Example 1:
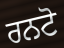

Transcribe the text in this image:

ਰਨਟੋ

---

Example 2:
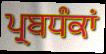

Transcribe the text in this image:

ਪ੍ਰਬਧੰਕਾਂ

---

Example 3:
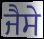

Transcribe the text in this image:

ਜੈਸੇ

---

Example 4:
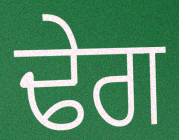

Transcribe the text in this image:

ਢੇਗ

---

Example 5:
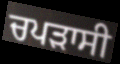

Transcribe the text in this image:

ਚਪੜਾਸੀ